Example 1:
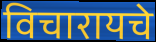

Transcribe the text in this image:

विचारायचे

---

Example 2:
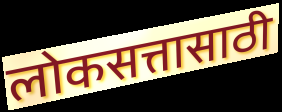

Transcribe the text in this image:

लोकसत्तासाठी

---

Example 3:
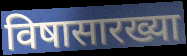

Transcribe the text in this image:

विषासारख्या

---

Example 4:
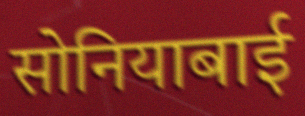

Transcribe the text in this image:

सोनियाबाई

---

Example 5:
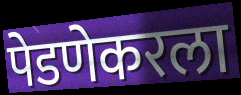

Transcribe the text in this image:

पेडणेकरला